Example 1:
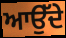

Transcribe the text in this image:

ਆਉੱਦੇ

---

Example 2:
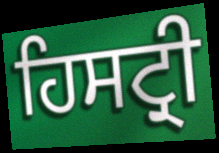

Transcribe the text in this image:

ਹਿਸਟ੍ਰੀ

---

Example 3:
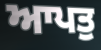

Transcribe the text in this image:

ਆਪਤੁ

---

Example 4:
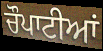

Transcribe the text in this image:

ਚੌਪਾਟੀਆਂ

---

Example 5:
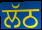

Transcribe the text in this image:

ਲੱਠ